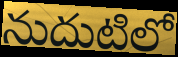
నుదుటిలో